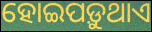
ହୋଇପଡ଼ୁଥାଏ